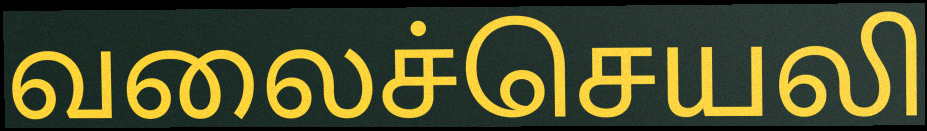
வலைச்செயலி